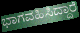
ಭಾಗವಹಿಸಿದ್ದಾರೆ